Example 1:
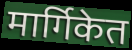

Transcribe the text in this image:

मार्गिकेत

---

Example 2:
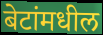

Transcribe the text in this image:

बेटांमधील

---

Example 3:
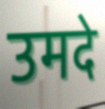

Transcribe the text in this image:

उमदे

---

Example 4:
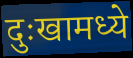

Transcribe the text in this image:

दुःखामध्ये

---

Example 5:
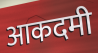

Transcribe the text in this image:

आकदमी